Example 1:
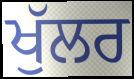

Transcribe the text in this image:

ਖੁੱਲਰ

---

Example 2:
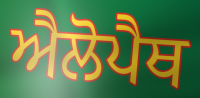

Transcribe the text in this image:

ਐਲੋਪੈਥ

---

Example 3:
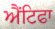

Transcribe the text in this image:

ਐਂਟਿਫਾ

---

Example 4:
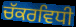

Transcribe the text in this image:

ਚੱਕਰਵਿਧੀ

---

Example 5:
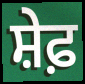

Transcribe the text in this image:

ਸ਼ੇਫ਼